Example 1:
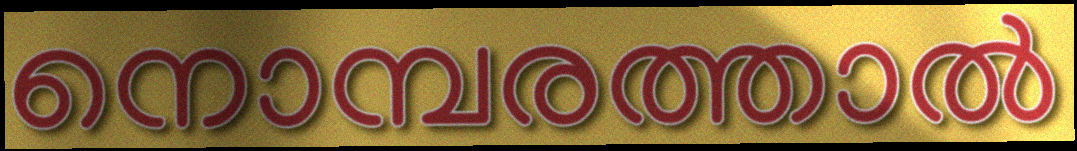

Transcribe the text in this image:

നൊമ്പരത്താൽ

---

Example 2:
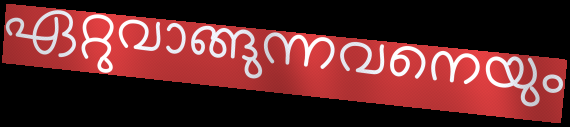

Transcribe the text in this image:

ഏറ്റുവാങ്ങുന്നവനെയും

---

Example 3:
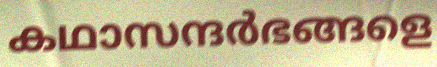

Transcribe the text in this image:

കഥാസന്ദർഭങ്ങളെ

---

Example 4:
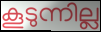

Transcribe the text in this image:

കൂടുന്നില്ല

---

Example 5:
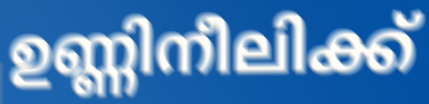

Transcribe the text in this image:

ഉണ്ണിനീലിക്ക്